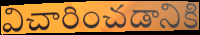
విచారించడానికి